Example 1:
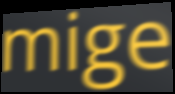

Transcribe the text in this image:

mige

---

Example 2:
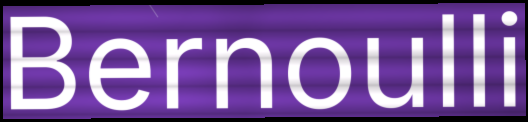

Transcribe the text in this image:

Bernoulli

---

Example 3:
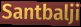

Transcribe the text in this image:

Santbalji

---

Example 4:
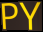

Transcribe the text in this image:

PY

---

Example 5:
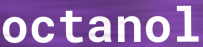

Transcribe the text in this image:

octanol